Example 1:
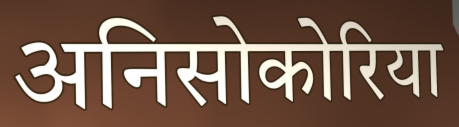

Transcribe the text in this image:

अनिसोकोरिया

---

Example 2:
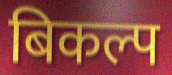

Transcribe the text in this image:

बिकल्प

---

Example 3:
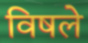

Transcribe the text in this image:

विषले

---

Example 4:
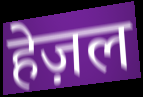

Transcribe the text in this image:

हेज़ल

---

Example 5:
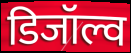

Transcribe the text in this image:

डिजॉल्व